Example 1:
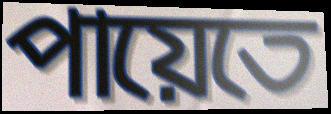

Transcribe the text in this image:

পায়েতে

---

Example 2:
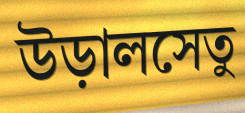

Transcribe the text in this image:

উড়ালসেতু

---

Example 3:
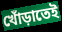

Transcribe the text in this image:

খোঁড়াতেই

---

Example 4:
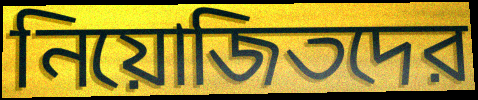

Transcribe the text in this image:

নিয়োজিতদের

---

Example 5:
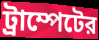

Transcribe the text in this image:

ট্রাম্পেটের